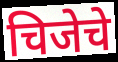
चिजेचे